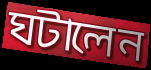
ঘটালেন